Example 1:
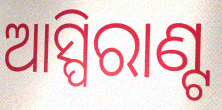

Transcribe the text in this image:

ଆସ୍ପିରାଣ୍ଟ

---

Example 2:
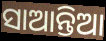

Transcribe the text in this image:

ସାଆନ୍ତିଆ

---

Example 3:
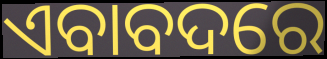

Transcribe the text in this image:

ଏବାବଦରେ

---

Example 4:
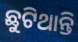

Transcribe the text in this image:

ଛୁଟିଥାନ୍ତି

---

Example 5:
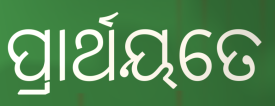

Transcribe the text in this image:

ପ୍ରାର୍ଥୟତେ